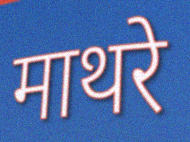
माथरे